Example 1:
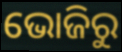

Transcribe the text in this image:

ଭୋଜିରୁ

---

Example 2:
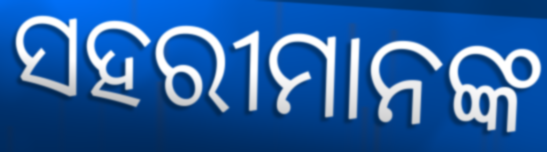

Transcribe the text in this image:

ସହରୀମାନଙ୍କ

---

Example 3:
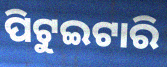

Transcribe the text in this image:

ପିଟୁଇଟାରି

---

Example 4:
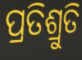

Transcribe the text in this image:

ପ୍ରତିଶ୍ରୁତି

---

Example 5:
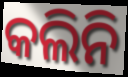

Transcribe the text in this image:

କଲିନି